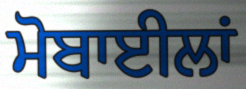
ਮੋਬਾਈਲਾਂ